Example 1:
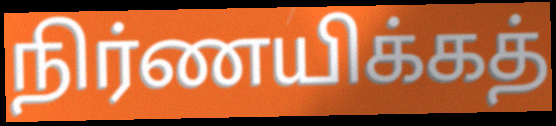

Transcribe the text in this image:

நிர்ணயிக்கத்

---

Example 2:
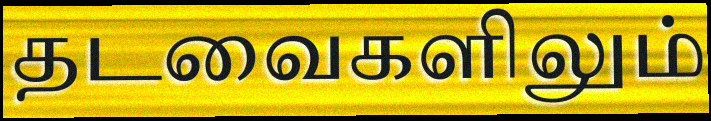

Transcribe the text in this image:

தடவைகளிலும்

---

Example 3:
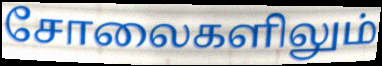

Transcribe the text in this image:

சோலைகளிலும்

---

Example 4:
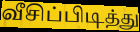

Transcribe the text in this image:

வீசிப்பிடித்து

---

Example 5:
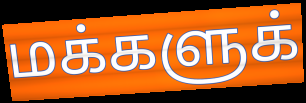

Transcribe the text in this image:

மக்களுக்